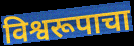
विश्वरूपाचा